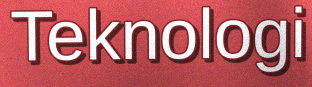
Teknologi